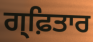
ਗ੍ਫ਼ਿਤਾਰ